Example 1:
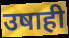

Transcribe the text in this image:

उषाही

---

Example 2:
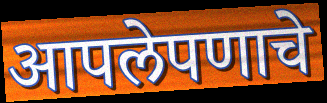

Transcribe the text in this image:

आपलेपणाचे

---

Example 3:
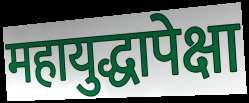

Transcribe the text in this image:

महायुद्धापेक्षा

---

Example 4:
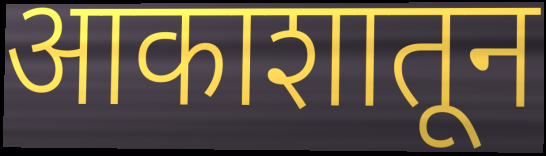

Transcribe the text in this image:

आकाशातून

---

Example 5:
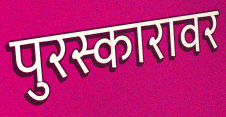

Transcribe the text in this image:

पुरस्कारावर